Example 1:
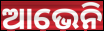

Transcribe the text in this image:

ଆଭେନି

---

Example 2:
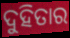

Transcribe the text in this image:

ଦୁହିତାର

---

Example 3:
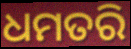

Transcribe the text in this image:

ଧମତରି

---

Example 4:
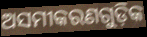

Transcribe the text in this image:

ଅସମୀକରଣଗୁଡ଼ିକ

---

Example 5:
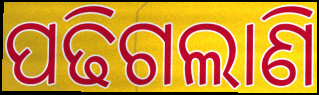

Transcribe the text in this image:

ପଢିଗଲାଣି